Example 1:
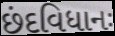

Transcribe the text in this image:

છંદવિધાનઃ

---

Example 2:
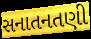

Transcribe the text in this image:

સનાતનતણી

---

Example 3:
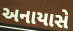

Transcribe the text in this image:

અનાયાસે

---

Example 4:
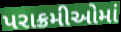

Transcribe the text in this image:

પરાક્રમીઓમાં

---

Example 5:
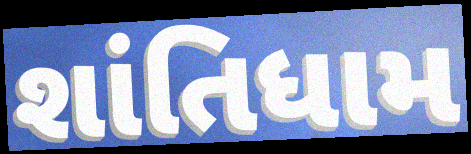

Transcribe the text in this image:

શાંતિધામ